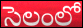
సెలంలో